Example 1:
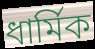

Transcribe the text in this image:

ধার্মিক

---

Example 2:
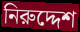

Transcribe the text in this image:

নিরুদ্দেশ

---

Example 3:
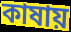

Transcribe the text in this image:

কাষায়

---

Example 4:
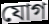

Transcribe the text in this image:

যোগ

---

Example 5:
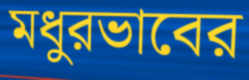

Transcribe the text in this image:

মধুরভাবের